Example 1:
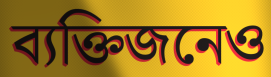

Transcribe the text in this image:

ব্যক্তিজনেও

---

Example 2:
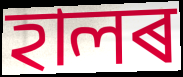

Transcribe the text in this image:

হালৰ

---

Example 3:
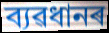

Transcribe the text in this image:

ব্যৱধানৰ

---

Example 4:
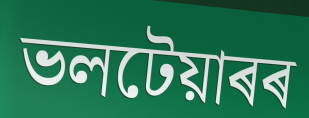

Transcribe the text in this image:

ভলটেয়াৰৰ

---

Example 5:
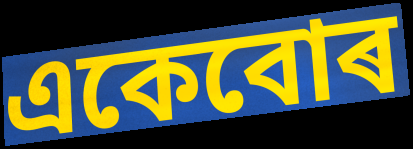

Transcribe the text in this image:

একেবোৰ